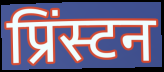
प्रिंस्टन